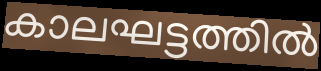
കാലഘട്ടത്തിൽ